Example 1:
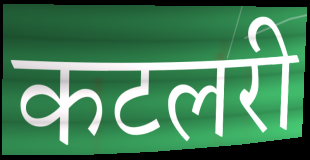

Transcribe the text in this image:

कटलरी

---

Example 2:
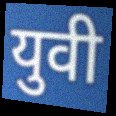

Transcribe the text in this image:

युवी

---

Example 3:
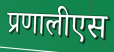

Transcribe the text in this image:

प्रणालीएस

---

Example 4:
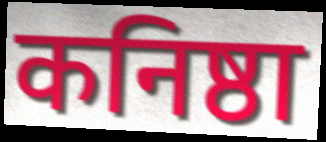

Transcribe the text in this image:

कनिष्ठा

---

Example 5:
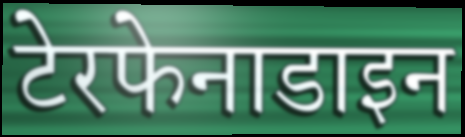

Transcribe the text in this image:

टेरफेनाडाइन